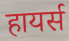
हायर्स